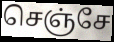
செஞ்சே